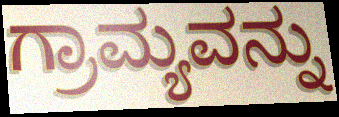
ಗ್ರಾಮ್ಯವನ್ನು